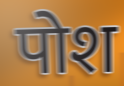
पोश